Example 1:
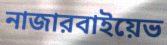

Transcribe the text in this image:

নাজারবাইয়েভ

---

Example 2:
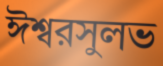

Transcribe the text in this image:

ঈশ্বরসুলভ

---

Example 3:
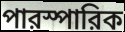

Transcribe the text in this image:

পারস্পারিক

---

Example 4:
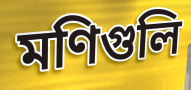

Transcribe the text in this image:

মণিগুলি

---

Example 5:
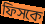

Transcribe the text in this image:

ফিসকে